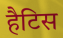
हैटिस